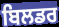
ਬਿਲਡਰ